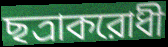
ছত্রাকরোধী